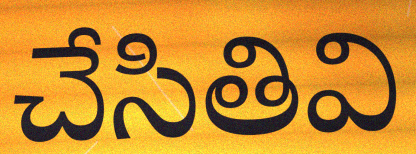
చేసితివి